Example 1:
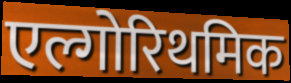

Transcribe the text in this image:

एल्गोरिथमिक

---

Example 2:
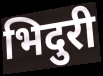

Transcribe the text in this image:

भिदुरी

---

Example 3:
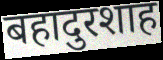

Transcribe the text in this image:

बहादुरशाह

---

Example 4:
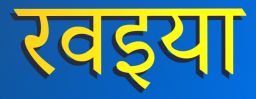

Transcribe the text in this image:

रवइया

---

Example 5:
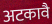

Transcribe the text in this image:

अटकावै